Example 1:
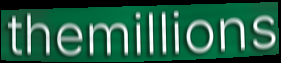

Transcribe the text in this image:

themillions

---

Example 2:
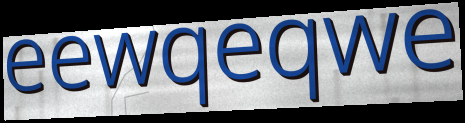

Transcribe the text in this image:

eewqeqwe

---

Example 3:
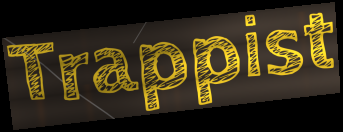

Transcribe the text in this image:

Trappist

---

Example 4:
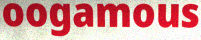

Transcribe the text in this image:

oogamous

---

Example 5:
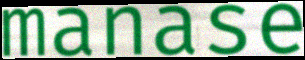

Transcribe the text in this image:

manase